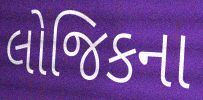
લોજિકના